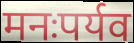
मनःपर्यव